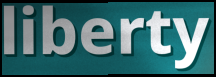
liberty